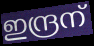
ഇന്ദ്രന്